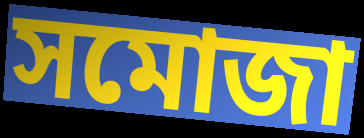
সমোজা